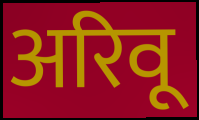
अरिवू